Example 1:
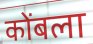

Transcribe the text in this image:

कोंबला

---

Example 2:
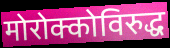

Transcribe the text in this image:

मोरोक्कोविरुद्ध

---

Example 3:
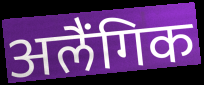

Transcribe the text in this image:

अलैंगिक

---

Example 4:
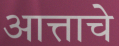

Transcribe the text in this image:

आत्ताचे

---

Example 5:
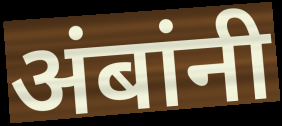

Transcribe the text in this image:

अंबांनी